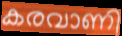
കരവാണി